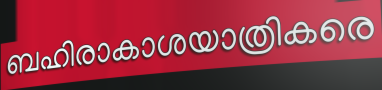
ബഹിരാകാശയാത്രികരെ